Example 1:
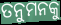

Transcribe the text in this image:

ତନୁମନକୁ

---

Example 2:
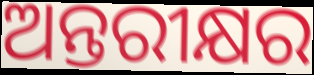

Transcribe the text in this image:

ଅନ୍ତରୀକ୍ଷର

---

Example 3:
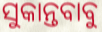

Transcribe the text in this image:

ସୁକାନ୍ତବାବୁ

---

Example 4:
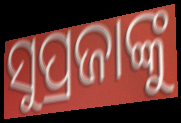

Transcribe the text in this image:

ସୁପ୍ରଜାଙ୍କୁ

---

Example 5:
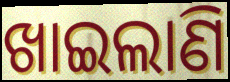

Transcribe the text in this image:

ଖାଇଲାଣି